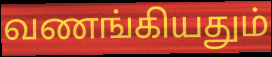
வணங்கியதும்